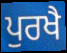
ਪੁਰਖੈ